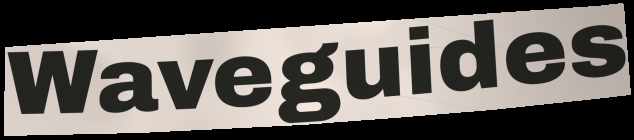
Waveguides